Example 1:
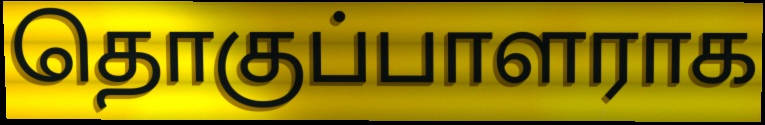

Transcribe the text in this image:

தொகுப்பாளராக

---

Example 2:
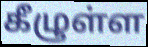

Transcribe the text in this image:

கீழுள்ள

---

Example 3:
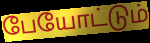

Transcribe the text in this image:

பேயோட்டும்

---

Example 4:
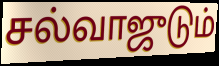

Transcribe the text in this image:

சல்வாஜுடும்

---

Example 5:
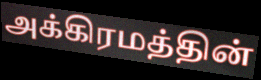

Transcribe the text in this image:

அக்கிரமத்தின்